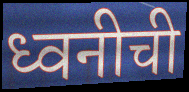
ध्वनीची